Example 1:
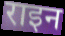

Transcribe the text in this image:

राइन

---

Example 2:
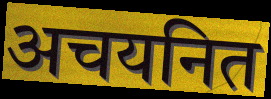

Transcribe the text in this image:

अचयनित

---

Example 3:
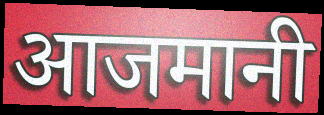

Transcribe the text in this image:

आजमानी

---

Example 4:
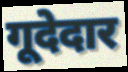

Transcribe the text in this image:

गूदेदार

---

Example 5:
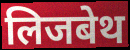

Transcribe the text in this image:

लिजबेथ